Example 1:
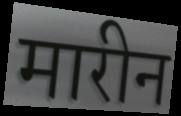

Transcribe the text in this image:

मारीन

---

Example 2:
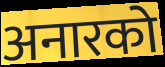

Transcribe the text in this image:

अनारको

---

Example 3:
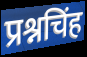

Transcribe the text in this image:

प्रश्नचिंह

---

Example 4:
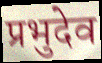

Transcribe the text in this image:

प्रभुदेव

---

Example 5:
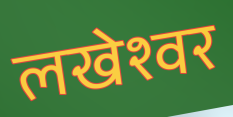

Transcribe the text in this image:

लखेश्वर